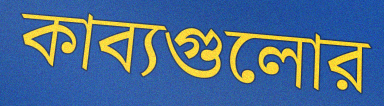
কাব্যগুলোর